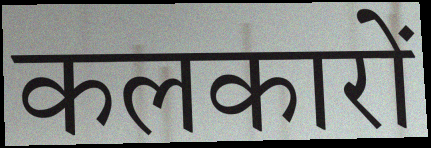
कलकारों